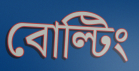
বোল্টিং